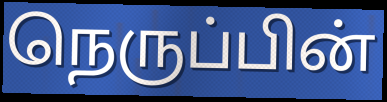
நெருப்பின்